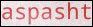
aspasht